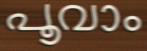
പൂവാം